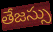
తేజస్సు